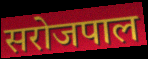
सरोजपाल